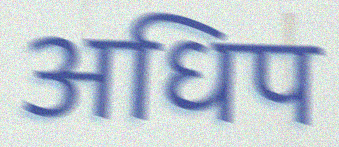
अधिप